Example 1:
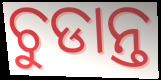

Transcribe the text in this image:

ଚୁଡାନ୍ତ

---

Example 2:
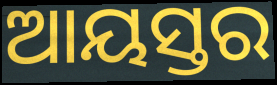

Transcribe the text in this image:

ଆୟସ୍ତର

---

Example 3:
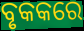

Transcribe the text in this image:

ବୃକକରେ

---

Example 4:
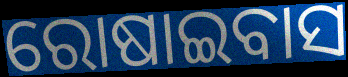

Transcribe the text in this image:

ରୋଷାଇବାସ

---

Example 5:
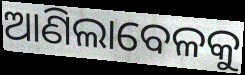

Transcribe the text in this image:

ଆଣିଲାବେଳକୁ